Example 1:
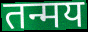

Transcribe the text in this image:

तन्‍मय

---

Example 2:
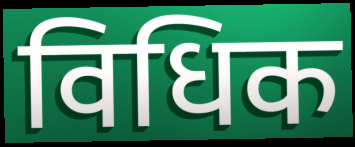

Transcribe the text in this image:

विधिक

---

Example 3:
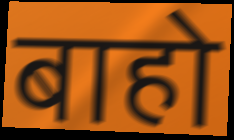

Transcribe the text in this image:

बाहो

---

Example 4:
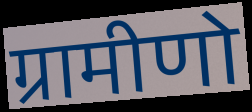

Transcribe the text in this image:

ग्रामीणो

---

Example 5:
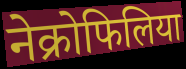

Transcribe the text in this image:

नेक्रोफिलिया